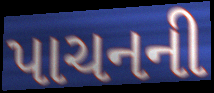
પાચનની